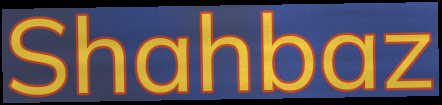
Shahbaz